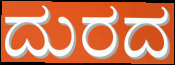
ದುರದ